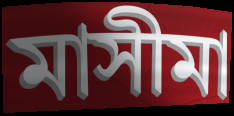
মাসীমা